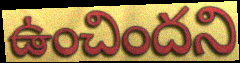
ఉంచిందని